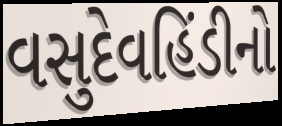
વસુદેવહિંડીનો